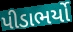
પીડાભર્યો